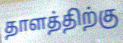
தாளத்திற்கு